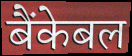
बैंकेबल